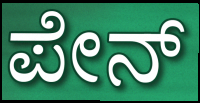
ಪೇನ್